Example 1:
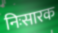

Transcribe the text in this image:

निःसारक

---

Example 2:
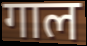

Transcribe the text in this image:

गाल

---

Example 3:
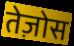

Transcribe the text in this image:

तेज़ोस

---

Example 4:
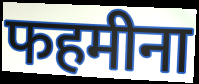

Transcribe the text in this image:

फहमीना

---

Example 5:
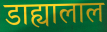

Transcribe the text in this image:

डाह्यालाल